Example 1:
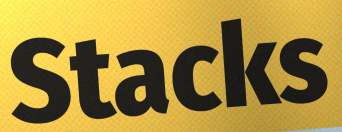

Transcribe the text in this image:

Stacks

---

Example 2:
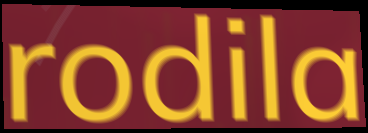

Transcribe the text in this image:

rodila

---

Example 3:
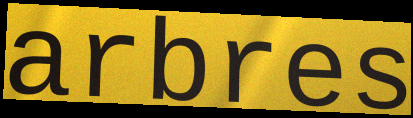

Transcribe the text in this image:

arbres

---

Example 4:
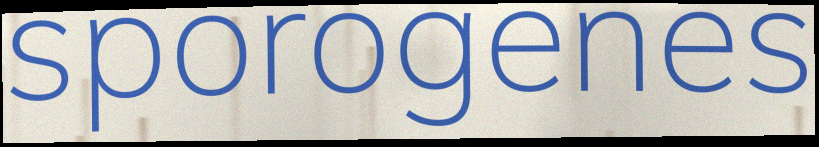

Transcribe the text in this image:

sporogenes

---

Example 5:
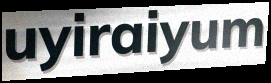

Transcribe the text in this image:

uyiraiyum